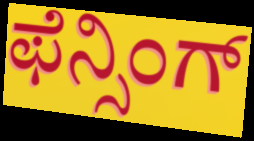
ಫೆನ್ಸಿಂಗ್